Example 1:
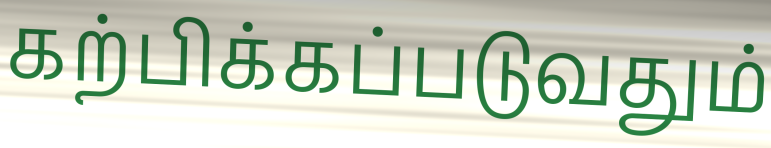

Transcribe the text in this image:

கற்பிக்கப்படுவதும்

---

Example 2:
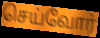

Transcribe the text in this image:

செய்வோர்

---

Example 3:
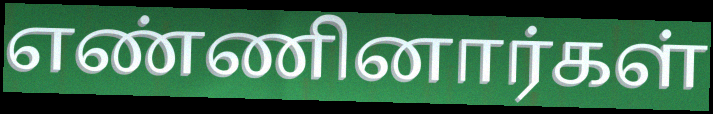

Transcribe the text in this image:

எண்ணினார்கள்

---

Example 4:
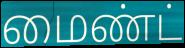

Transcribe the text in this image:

மைண்ட்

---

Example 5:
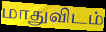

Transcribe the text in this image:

மாதுவிடம்